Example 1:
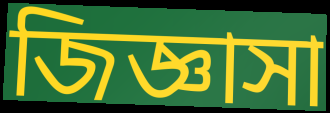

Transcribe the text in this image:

জিজ্ঞাসা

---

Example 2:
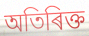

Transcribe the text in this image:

অতিৰিক্ত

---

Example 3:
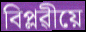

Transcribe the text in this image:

বিপ্লৱীয়ে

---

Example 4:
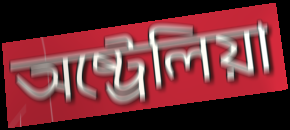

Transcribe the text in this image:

অষ্ট্ৰেলিয়া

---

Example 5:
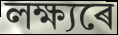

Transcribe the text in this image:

লক্ষ্যৰে